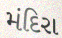
મંદિરા